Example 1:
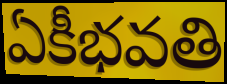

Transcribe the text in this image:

ఏకీభవతి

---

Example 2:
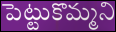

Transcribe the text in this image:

పెట్టుకొమ్మని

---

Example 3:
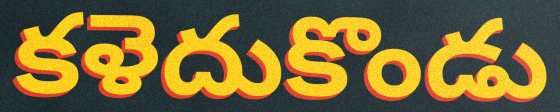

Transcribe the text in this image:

కళెదుకొండు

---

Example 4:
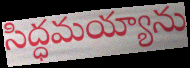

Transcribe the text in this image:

సిద్ధమయ్యాను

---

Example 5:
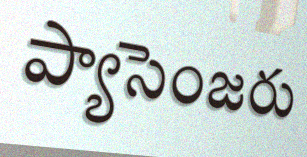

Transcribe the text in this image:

ప్యాసెంజరు